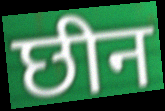
छीन